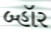
બ્હૉર